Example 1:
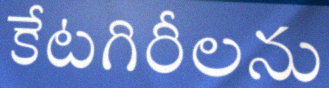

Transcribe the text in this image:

కేటగిరీలను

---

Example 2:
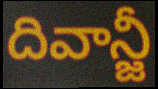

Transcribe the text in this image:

దివాన్జీ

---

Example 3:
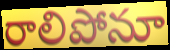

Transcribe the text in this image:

రాలిపోనూ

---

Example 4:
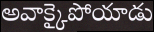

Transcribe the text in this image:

అవాక్కైపోయాడు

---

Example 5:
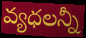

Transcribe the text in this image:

వ్యధలన్నీ